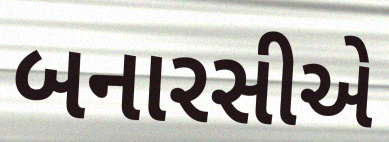
બનારસીએ